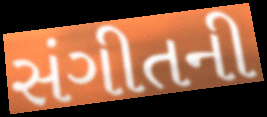
સંગીતની